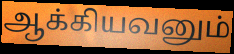
ஆக்கியவனும்